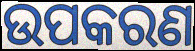
ଉପକରଣ